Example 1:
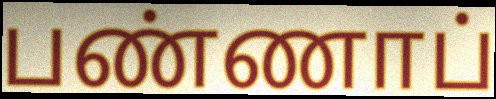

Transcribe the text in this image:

பண்ணாப்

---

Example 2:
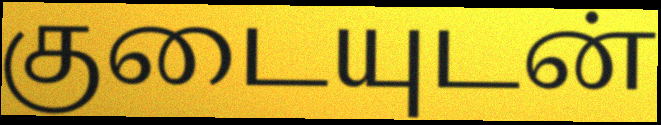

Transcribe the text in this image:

குடையுடன்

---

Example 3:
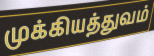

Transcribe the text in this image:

முக்கியத்துவம்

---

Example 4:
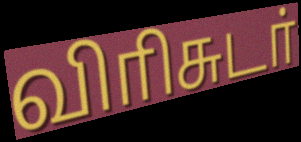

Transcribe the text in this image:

விரிசுடர்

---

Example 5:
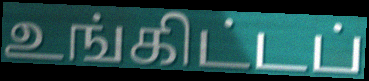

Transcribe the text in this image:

உங்கிட்டப்